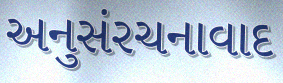
અનુસંરચનાવાદ